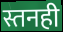
स्तनही